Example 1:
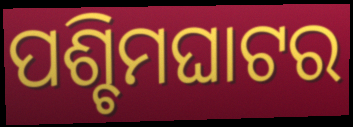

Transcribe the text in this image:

ପଶ୍ଚିମଘାଟର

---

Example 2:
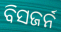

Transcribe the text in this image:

ବିସଜର୍ନ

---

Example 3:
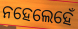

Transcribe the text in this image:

ନହେଲେହେଁ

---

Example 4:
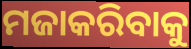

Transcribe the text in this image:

ମଜାକରିବାକୁ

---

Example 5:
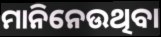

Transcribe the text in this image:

ମାନିନେଉଥିବା